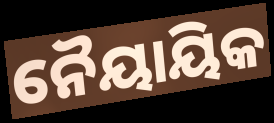
ନୈୟାୟିକ